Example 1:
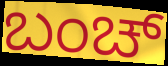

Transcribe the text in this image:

ಬಂಚ್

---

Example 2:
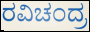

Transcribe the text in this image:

ರವಿಚಂದ್ರ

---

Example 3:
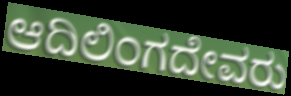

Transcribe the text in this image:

ಆದಿಲಿಂಗದೇವರು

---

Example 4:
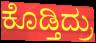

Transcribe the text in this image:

ಕೊಡ್ತಿದ್ರು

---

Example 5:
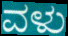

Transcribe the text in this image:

ವಳು